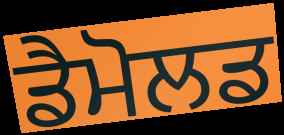
ਡੈਮੋਲਡ